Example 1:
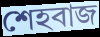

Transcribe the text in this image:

শেহবাজ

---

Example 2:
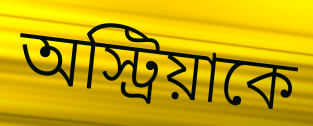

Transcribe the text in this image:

অস্ট্রিয়াকে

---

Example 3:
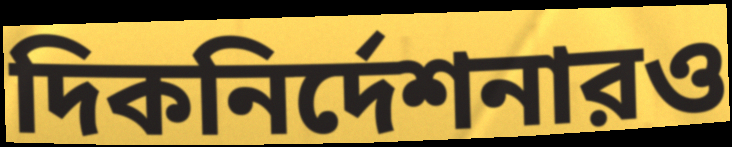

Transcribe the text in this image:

দিকনির্দেশনারও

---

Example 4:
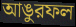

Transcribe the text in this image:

আঙুরফল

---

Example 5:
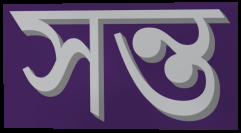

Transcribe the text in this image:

সন্ত